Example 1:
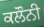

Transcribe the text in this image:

ਕਲੌਨੀ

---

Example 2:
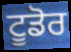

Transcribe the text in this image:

ਟੂਡੋਰ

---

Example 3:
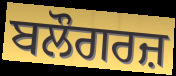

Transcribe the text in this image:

ਬਲੌਗਰਜ਼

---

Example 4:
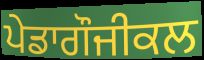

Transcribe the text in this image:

ਪੇਡਾਗੌਜੀਕਲ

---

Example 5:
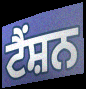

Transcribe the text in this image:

ਟੈਂਸ਼ਨ